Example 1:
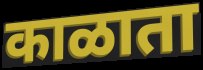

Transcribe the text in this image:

काळाता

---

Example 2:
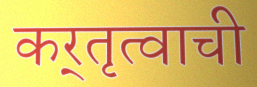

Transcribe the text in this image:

कर्तृत्वाची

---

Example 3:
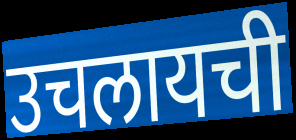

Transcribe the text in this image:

उचलायची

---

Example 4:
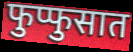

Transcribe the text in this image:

फुप्फुसात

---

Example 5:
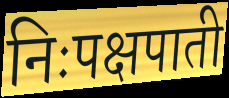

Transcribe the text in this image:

निःपक्षपाती